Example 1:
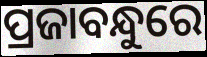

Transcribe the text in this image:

ପ୍ରଜାବନ୍ଧୁରେ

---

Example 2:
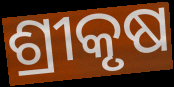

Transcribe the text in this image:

ଶ୍ରୀକୃଷ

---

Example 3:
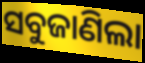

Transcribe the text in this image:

ସବୁଜାଣିଲା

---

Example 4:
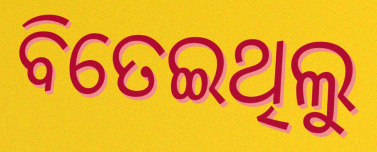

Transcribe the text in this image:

ବିତେଇଥିଲୁ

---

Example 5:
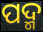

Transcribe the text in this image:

ପଦ୍ମ